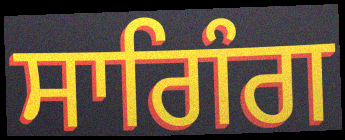
ਸਾਗਿੰਗ